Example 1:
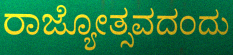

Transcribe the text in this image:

ರಾಜ್ಯೋತ್ಸವದಂದು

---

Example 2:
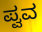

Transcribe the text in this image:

ಪ್ವವ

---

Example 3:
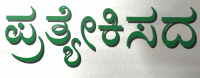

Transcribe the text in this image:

ಪ್ರತ್ಯೇಕಿಸದ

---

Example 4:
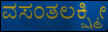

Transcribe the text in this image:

ವಸಂತಲಕ್ಷ್ಮೀ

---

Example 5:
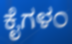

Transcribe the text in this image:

ಕೈಗಳಂ